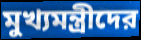
মুখ্যমন্ত্রীদের